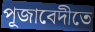
পূজাবেদীতে